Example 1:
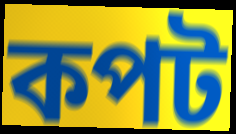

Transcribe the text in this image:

কপট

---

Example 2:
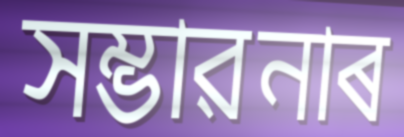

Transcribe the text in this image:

সম্ভাৱনাৰ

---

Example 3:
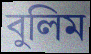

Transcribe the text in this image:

বুলিম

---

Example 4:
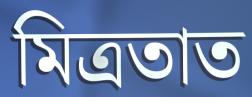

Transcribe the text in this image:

মিত্ৰতাত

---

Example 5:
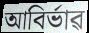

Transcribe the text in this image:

আবিৰ্ভাৱ